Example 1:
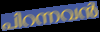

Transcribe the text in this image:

പിറന്നവൻ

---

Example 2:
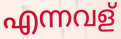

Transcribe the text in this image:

എന്നവള്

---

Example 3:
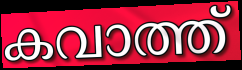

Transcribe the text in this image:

കവാത്ത്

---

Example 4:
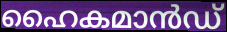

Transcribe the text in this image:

ഹൈകമാൻഡ്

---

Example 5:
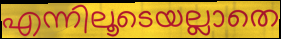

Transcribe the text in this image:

എന്നിലൂടെയല്ലാതെ